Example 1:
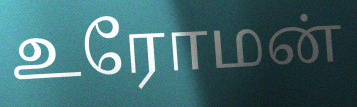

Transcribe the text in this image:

உரோமன்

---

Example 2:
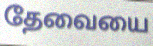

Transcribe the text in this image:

தேவையை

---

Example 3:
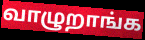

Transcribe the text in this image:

வாழுறாங்க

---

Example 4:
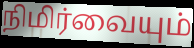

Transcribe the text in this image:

நிமிர்வையும்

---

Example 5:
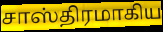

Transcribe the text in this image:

சாஸ்திரமாகிய